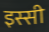
इस्सी